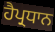
ਹੈਪ੍ਰਧਾਨ